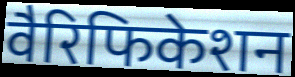
वैरिफिकेशन